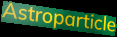
Astroparticle